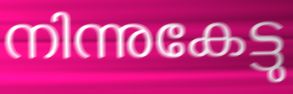
നിന്നുകേട്ടു